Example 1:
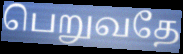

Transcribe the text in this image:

பெறுவதே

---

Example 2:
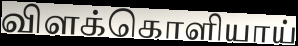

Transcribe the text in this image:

விளக்கொளியாய்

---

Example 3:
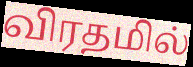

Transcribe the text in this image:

விரதமில்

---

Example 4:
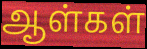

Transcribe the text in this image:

ஆள்கள்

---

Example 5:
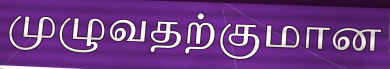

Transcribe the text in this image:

முழுவதற்குமான